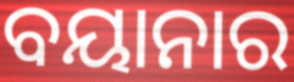
ବୟାନାର